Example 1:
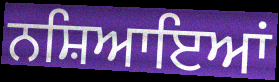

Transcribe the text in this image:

ਨਸ਼ਿਆਇਆਂ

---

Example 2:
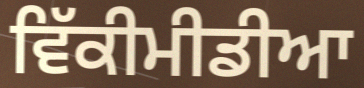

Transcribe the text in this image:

ਵਿੱਕੀਮੀਡੀਆ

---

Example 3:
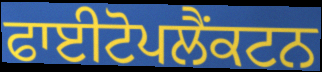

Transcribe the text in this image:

ਫਾਈਟੋਪਲੈਂਕਟਨ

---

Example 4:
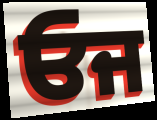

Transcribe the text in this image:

ਓਜ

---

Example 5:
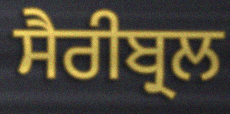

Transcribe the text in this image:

ਸੈਰੀਬ੍ਰਲ